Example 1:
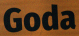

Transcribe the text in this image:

Goda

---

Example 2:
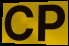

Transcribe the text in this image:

CP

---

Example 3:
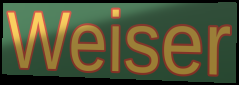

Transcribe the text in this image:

Weiser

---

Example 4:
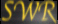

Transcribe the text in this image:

SWR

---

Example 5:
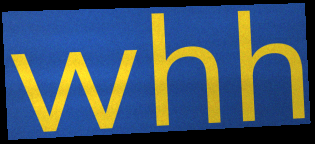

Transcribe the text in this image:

whh